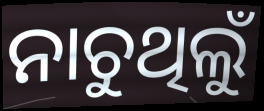
ନାଚୁଥିଲୁଁ